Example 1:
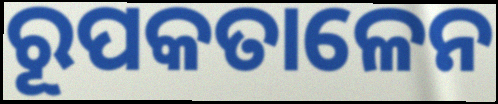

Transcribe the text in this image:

ରୂପକତାଳେନ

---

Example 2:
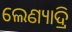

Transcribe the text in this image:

ଲେଣ୍ୟାଦ୍ରି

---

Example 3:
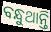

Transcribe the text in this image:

ବନ୍ଧୁଥାନ୍ତି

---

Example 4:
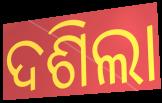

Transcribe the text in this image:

ଦଶିଲା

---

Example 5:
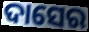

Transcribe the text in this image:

ଦାସେର